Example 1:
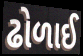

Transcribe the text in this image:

ઢોળાઈ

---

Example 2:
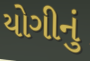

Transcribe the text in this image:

યોગીનું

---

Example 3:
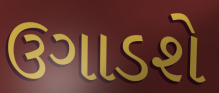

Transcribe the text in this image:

ઉગાડશે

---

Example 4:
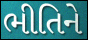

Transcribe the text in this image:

ભીતિને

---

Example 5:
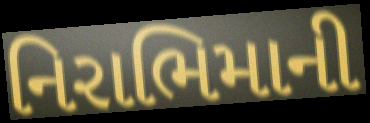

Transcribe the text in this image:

નિરાભિમાની